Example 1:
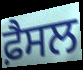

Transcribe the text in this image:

ਫ਼ੈਸਲ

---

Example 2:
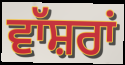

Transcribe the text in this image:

ਵਾੱਸ਼ਰਾਂ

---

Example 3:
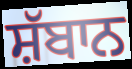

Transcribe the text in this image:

ਸ਼ੱਬਾਨ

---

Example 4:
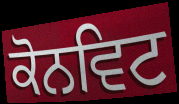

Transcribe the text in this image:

ਕੋਨਵਿਟ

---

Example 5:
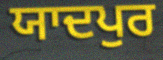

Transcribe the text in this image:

ਯਾਦਪੁਰ